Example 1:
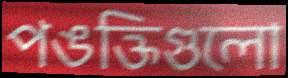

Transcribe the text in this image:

পঙক্তিগুলো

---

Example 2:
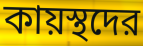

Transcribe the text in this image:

কায়স্থদের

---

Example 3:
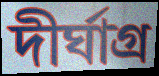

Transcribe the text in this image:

দীর্ঘাগ্র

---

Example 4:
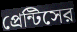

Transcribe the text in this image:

প্রেন্টিসের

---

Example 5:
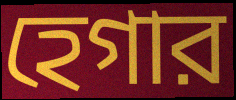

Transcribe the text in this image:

হেগার